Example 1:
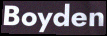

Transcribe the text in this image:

Boyden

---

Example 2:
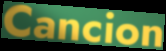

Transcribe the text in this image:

Cancion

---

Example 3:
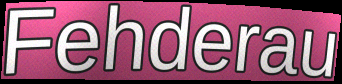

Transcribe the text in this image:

Fehderau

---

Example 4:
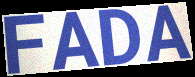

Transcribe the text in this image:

FADA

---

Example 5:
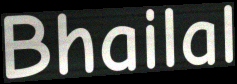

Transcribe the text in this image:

Bhailal